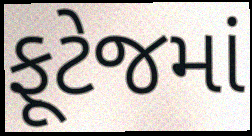
ફૂટેજમાં